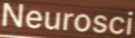
Neurosci